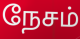
நேசம்